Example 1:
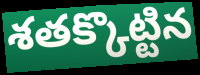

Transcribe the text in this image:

శతక్కొట్టిన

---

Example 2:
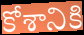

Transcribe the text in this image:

కోశానికి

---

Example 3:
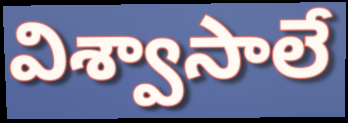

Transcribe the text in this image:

విశ్వాసాలే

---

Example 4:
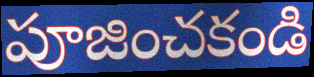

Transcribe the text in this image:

పూజించకండి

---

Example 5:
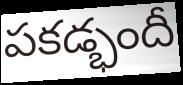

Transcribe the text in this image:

పకడ్భందీ